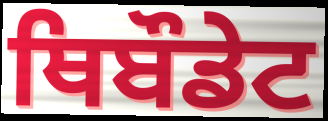
ਥਿਬੌਡੇਟ